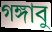
গঙ্গাবু